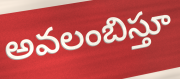
అవలంబిస్తూ